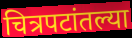
चित्रपटांतल्या